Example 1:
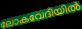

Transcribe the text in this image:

ലോകവേദിയിൽ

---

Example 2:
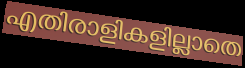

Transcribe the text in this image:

എതിരാളികളില്ലാതെ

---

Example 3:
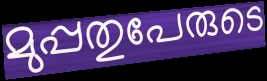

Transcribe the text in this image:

മുപ്പതുപേരുടെ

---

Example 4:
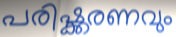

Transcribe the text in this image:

പരിഷ്ക്കരണവും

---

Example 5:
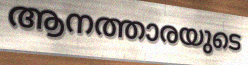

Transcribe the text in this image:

ആനത്താരയുടെ